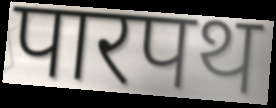
पारपथ